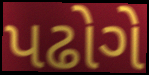
પઢોગે